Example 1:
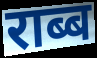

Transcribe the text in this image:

राब्ब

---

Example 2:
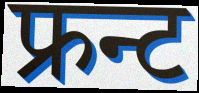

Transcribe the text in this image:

फ्रन्ट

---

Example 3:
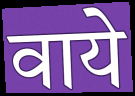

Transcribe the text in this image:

वाये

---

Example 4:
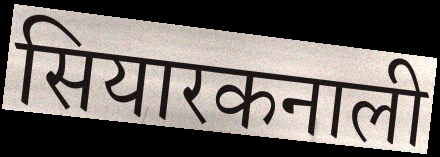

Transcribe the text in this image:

सियारकनाली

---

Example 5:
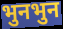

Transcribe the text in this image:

भुनभुन